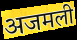
अजमली